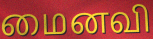
மைனவி